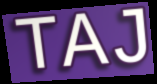
TAJ